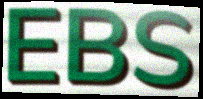
EBS